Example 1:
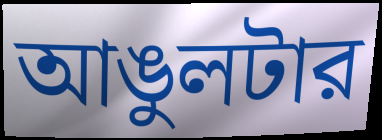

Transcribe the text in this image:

আঙুলটার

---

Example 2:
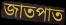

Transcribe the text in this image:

জাতপাত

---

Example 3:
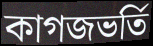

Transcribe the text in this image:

কাগজভর্তি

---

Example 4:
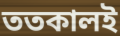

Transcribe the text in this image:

ততকালই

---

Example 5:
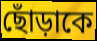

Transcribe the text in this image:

ছোঁড়াকে